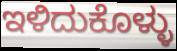
ಇಳಿದುಕೊಳ್ಳು